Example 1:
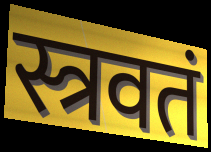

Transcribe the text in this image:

स्त्रवतं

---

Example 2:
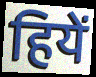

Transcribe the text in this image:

हियें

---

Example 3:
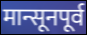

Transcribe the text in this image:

मान्सूनपूर्व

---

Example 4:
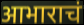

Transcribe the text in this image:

आभाराचं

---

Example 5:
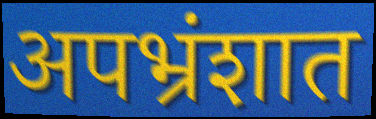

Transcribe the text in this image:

अपभ्रंशात